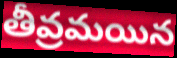
తీవ్రమయిన